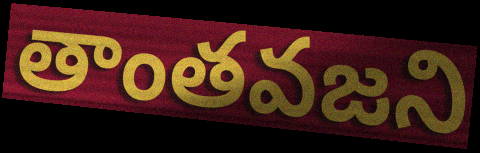
తాంతవజని